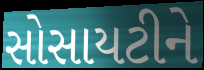
સોસાયટીને